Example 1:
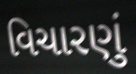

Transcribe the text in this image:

વિચારણું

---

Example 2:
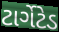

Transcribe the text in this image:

ટાર્ગેટેડ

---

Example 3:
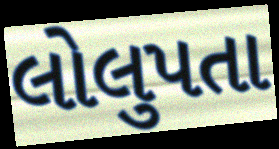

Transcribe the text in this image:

લોલુપતા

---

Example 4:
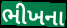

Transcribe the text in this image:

ભીખના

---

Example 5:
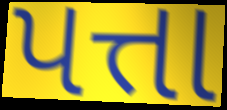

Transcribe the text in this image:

પત્તા